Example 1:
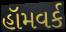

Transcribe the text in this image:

હૉમવર્ક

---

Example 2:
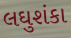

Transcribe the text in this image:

લઘુશંકા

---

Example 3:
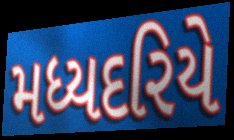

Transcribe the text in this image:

મધ્યદરિયે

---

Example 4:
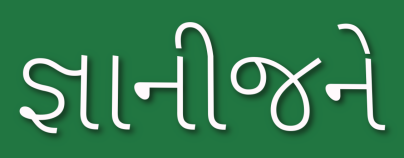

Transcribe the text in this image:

જ્ઞાનીજને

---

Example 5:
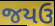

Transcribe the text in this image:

જયઉ